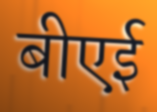
बीएई